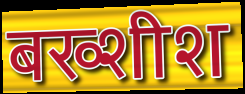
बख्शीश